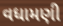
વધામણી